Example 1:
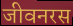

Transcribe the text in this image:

जीवनरस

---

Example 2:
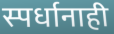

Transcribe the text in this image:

स्पर्धानाही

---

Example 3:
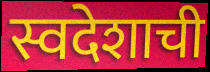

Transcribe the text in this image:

स्वदेशाची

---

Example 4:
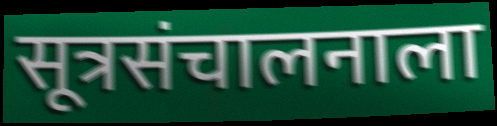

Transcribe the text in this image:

सूत्रसंचालनाला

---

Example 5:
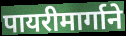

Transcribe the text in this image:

पायरीमार्गाने